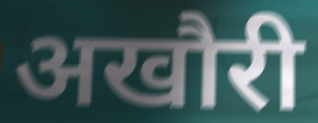
अखौरी